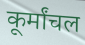
कूर्मांचल